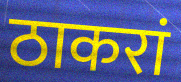
ठाकरां